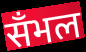
सँभल